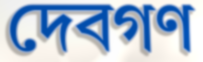
দেবগণ